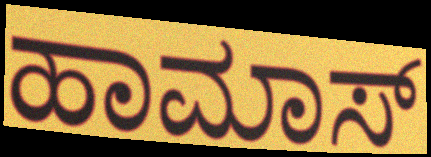
ಹಾಮಾಸ್